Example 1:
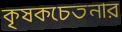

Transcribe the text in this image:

কৃষকচেতনার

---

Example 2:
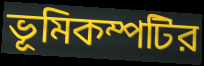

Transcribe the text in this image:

ভূমিকম্পটির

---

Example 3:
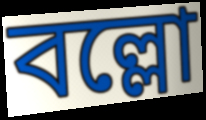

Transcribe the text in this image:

বল্লো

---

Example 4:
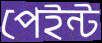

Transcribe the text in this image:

পেইন্ট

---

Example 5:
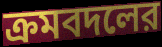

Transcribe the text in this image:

ক্রমবদলের